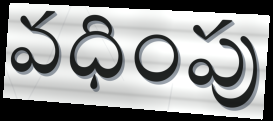
వధింపు